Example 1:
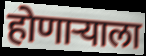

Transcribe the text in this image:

होणाऱ्याला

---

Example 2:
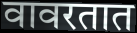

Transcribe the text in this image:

वावरतात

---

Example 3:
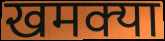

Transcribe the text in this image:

खमक्या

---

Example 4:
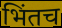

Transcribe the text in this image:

भिंतच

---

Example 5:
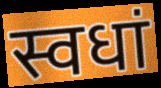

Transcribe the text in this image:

स्वधां